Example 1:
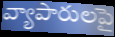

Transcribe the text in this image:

వ్యాపారులపై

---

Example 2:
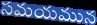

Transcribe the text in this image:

సమయమున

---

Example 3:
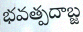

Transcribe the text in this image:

భవత్పదాబ్జ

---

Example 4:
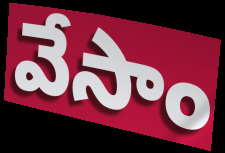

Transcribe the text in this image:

వేసాం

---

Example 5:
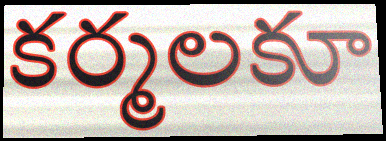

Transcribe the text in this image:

కర్మలకూ